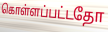
கொள்ளப்பட்டதோ